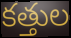
కత్తుల